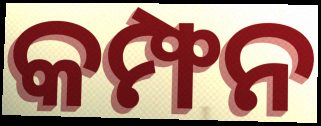
କମ୍ଫନ